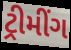
ટ્રીમીંગ